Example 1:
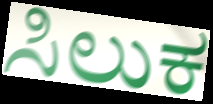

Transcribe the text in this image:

ಸಿಲುಕ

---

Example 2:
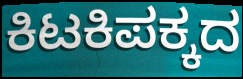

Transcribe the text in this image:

ಕಿಟಕಿಪಕ್ಕದ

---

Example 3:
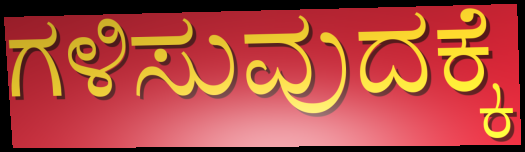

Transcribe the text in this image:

ಗಳಿಸುವುದಕ್ಕೆ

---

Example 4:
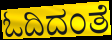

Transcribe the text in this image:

ಓದಿದಂತೆ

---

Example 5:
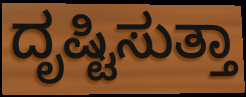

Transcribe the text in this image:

ದೃಷ್ಟಿಸುತ್ತಾ